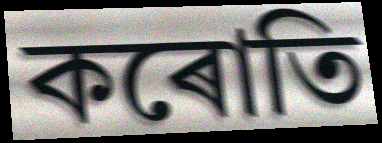
কৰোতি